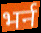
भर्न